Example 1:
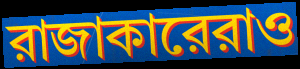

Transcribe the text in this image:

রাজাকারেরাও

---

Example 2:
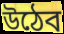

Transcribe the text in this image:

উঠেব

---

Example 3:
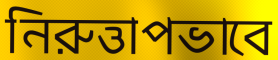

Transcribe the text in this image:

নিরুত্তাপভাবে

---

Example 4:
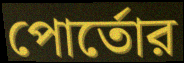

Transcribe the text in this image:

পোর্তোর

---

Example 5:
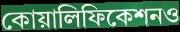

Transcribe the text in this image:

কোয়ালিফিকেশনও